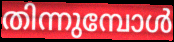
തിന്നുമ്പോൾ